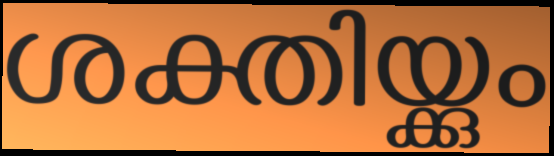
ശക്തിയ്ക്കും